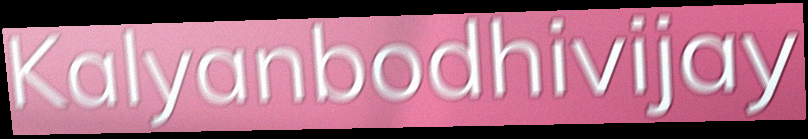
Kalyanbodhivijay